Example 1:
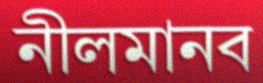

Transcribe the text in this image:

নীলমানব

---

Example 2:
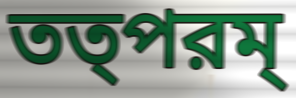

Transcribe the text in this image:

তত্পরম্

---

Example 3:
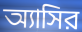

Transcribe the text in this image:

অ্যাসির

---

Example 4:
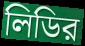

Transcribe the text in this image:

লিডির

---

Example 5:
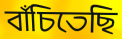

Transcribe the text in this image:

বাঁচিতেছি